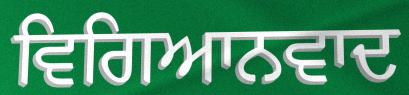
ਵਿਗਿਆਨਵਾਦ